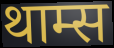
थाम्स